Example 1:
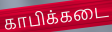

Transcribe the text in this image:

காபிக்கடை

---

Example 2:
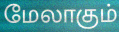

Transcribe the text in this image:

மேலாகும்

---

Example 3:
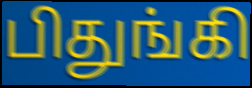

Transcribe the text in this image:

பிதுங்கி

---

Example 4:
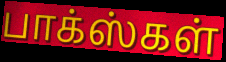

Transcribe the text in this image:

பாக்ஸ்கள்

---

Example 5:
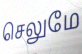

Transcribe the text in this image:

செலுமே